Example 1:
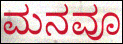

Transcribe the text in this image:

ಮನವೂ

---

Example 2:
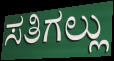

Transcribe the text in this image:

ಸತಿಗಲ್ಲು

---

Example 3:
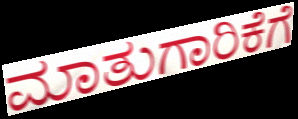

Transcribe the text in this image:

ಮಾತುಗಾರಿಕೆಗೆ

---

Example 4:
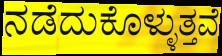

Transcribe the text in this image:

ನಡೆದುಕೊಳ್ಳುತ್ತವೆ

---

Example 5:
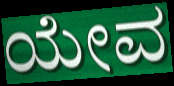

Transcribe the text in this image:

ಯೇವ